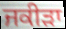
ਜਕੀੜਾ